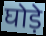
घोड़े